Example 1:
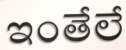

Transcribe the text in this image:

ఇంతేలే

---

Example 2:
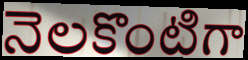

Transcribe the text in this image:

నెలకొంటిగా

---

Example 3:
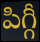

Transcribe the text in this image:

పిగ్గీ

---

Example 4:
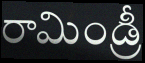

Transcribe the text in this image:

రామిండ్రీ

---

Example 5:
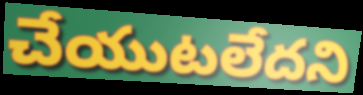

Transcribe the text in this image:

చేయుటలేదని